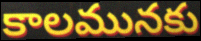
కాలమునకు